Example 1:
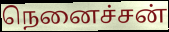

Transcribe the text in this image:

நெனைச்சன்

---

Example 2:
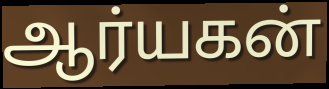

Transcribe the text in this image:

ஆர்யகன்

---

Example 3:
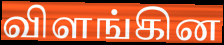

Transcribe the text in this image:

விளங்கின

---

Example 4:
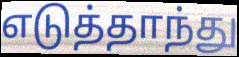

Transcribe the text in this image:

எடுத்தாந்து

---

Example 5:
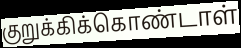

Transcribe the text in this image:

குறுக்கிக்கொண்டாள்